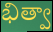
భిత్వా